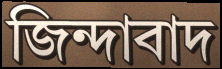
জিন্দাবাদ